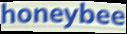
honeybee